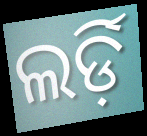
ଲର୍ଡ଼ି